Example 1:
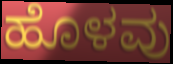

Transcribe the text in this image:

ಹೊಳವು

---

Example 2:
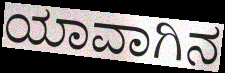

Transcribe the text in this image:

ಯಾವಾಗಿನ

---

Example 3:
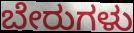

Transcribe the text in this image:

ಬೇರುಗಳು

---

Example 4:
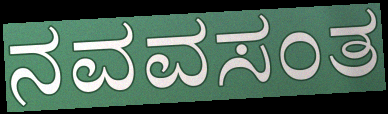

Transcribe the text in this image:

ನವವಸಂತ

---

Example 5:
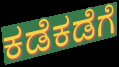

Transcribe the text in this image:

ಕಡೆಕಡೆಗೆ